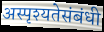
अस्पृश्यतेसंबंधी